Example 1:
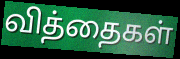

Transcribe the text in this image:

வித்தைகள்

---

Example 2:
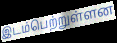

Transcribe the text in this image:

இடம்பெற்றுள்ளன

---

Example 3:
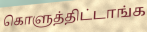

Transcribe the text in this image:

கொளுத்திட்டாங்க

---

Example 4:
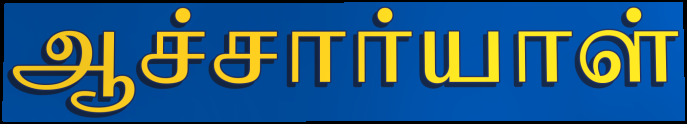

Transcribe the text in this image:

ஆச்சார்யாள்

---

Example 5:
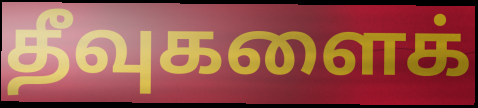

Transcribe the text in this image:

தீவுகளைக்